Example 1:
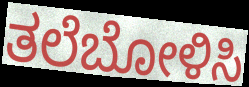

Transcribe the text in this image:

ತಲೆಬೋಳಿಸಿ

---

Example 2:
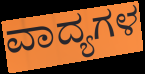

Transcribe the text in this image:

ವಾದ್ಯಗಳ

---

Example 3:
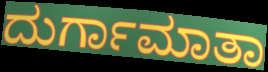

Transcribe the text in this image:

ದುರ್ಗಾಮಾತಾ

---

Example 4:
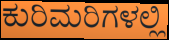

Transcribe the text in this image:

ಕುರಿಮರಿಗಳಲ್ಲಿ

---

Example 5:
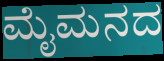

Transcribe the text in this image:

ಮೈಮನದ